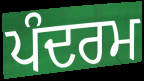
ਪੰਦਰਮ